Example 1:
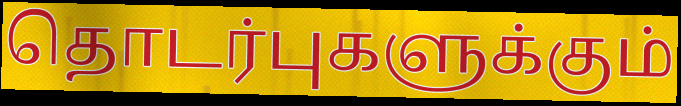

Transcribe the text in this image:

தொடர்புகளுக்கும்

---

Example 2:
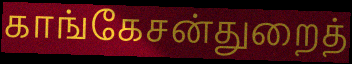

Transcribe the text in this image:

காங்கேசன்துறைத்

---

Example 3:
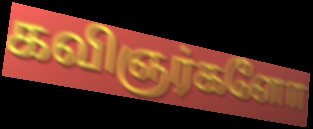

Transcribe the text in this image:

கவிஞர்களோ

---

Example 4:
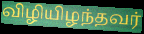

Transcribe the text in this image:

விழியிழந்தவர்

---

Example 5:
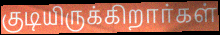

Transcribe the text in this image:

குடியிருக்கிறார்கள்